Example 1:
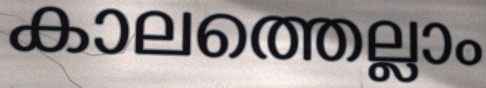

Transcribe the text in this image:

കാലത്തെല്ലാം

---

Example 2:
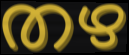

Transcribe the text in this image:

തഴ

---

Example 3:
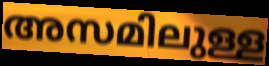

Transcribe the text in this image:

അസമിലുള്ള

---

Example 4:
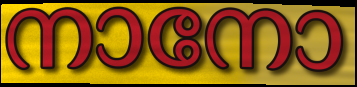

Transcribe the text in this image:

നാനോ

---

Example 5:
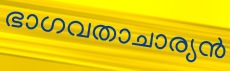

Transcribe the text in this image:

ഭാഗവതാചാര്യൻ